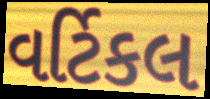
વર્ટિકલ